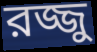
রজ্জু